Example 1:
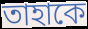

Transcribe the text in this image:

তাহাকে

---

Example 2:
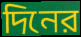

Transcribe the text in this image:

দিনের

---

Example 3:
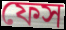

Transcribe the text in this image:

ফেস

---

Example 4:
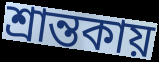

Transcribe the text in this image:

শ্রান্তকায়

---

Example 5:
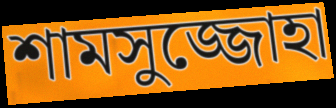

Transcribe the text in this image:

শামসুজ্জোহা